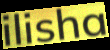
ilisha